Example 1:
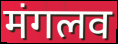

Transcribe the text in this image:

मंगलव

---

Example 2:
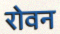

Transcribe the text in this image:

रोवन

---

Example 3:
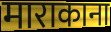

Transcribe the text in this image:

माराकाना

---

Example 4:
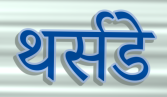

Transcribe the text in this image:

थर्सडे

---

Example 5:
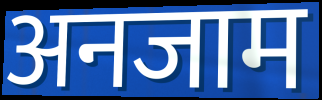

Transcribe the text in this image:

अनजाम